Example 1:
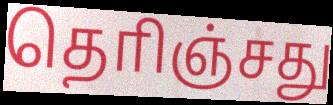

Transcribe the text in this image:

தெரிஞ்சது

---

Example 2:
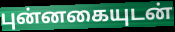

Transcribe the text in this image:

புன்னகையுடன்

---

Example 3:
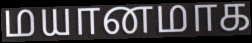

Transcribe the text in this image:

மயானமாக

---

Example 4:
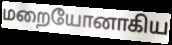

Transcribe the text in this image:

மறையோனாகிய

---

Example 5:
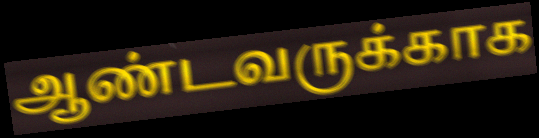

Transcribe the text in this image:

ஆண்டவருக்காக